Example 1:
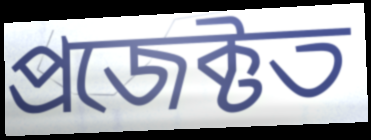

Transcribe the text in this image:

প্ৰজেক্টত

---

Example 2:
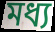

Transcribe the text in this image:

মধ্য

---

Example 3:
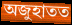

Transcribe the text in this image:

অজুহাতত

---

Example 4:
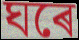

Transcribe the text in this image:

ঘৰে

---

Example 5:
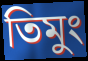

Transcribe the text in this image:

তিমুং